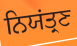
ਨਿਯਂਤ੍ਰਣ